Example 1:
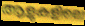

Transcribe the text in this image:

ആളുകളിലെ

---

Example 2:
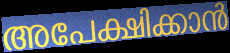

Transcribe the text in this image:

അപേക്ഷിക്കാൻ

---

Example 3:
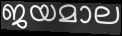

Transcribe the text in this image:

ജയമാല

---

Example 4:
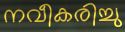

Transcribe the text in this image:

നവീകരിച്ചു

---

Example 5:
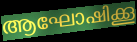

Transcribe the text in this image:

ആഘോഷിക്കൂ